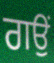
ਗਉਂ